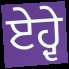
ਏਹ੍ਦੇ